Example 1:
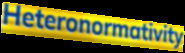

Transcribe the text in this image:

Heteronormativity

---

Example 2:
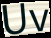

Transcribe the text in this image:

Uv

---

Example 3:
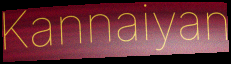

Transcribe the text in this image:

Kannaiyan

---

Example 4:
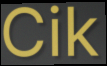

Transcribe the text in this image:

Cik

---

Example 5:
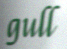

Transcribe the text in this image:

gull